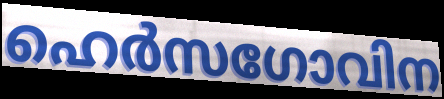
ഹെർസഗോവിന